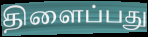
திளைப்பது